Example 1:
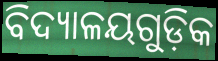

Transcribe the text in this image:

ବିଦ୍ୟାଳୟଗୁଡ଼ିକ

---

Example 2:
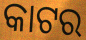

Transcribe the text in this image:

କାଟର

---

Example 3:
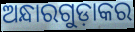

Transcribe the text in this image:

ଅନ୍ଧାରଗୁଡ଼ାକର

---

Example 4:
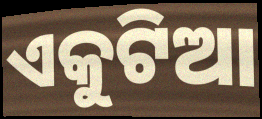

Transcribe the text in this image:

ଏକୁଟିଆ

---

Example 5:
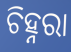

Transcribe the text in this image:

ଚିହ୍ନରା